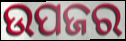
ଉପଜର